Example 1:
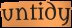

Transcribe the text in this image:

untidy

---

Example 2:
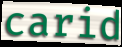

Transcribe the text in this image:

carid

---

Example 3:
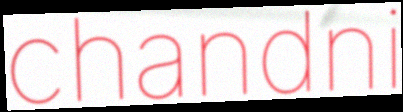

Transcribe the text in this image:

chandni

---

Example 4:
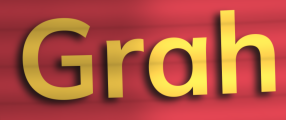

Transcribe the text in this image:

Grah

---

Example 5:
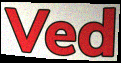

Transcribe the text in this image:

Ved